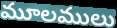
మూలములు